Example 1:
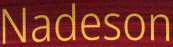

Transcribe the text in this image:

Nadeson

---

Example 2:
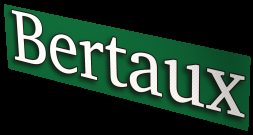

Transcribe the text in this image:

Bertaux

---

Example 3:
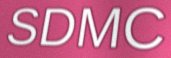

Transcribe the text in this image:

SDMC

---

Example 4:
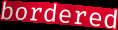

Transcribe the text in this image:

bordered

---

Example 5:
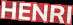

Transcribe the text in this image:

HENRI